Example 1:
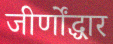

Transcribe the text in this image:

जीर्णोंद्धार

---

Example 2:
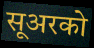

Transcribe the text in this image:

सूअरको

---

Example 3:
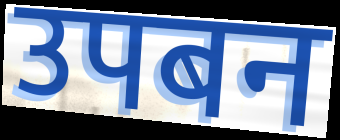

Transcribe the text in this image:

उपबन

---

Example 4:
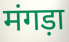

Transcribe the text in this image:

मंगड़ा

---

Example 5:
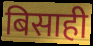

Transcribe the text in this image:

बिसाही